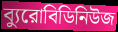
ব্যুরোবিডিনিউজ